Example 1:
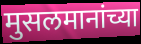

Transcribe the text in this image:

मुसलमानांच्या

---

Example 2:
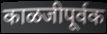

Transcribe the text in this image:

काळजीपूर्वक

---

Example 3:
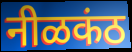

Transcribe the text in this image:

नीळकंठ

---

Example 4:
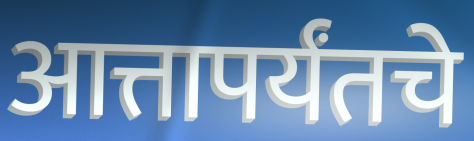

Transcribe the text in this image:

आत्तापर्यंतचे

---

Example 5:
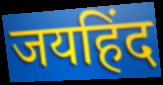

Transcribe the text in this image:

जयहिंद